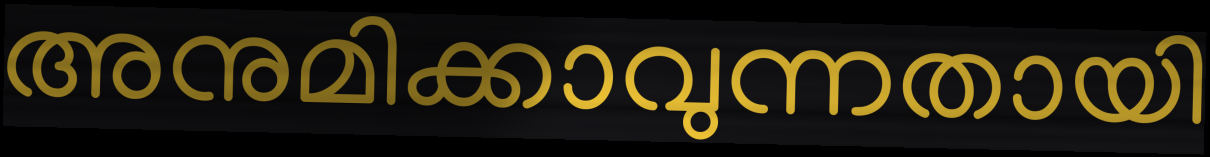
അനുമിക്കാവുന്നതായി